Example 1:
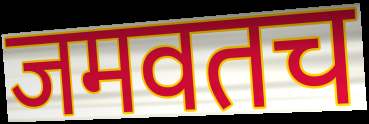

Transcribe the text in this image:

जमवतच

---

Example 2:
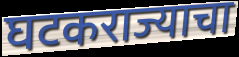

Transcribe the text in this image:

घटकराज्याचा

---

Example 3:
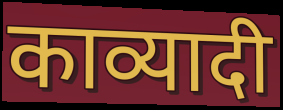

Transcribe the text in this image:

काव्यादी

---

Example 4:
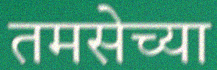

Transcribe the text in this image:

तमसेच्या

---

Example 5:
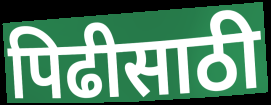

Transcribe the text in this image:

पिढीसाठी